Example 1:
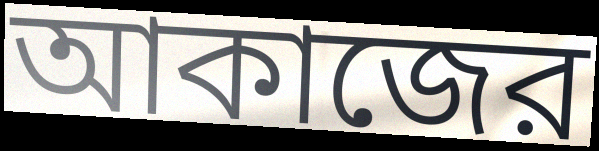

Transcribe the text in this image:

আকাজের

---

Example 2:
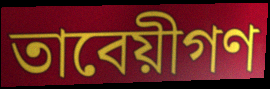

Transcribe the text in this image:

তাবেয়ীগণ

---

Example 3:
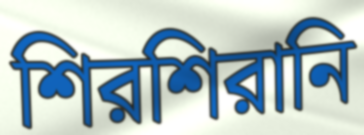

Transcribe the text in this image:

শিরশিরানি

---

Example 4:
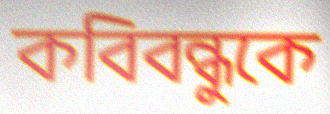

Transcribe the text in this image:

কবিবন্ধুকে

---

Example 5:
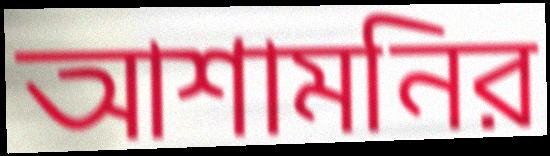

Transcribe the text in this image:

আশামনির